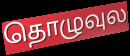
தொழுவுல